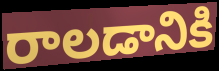
రాలడానికి